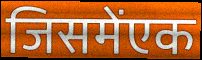
जिसमेंएक